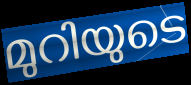
മുറിയുടെ